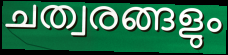
ചത്വരങ്ങളും